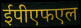
ईपीएफएल